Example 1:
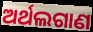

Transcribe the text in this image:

ଅର୍ଥଲଗାଣ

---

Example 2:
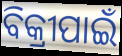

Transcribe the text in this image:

ବିକ୍ରୀପାଇଁ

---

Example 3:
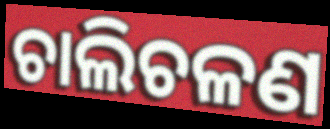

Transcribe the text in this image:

ଚାଲିଚଳଣ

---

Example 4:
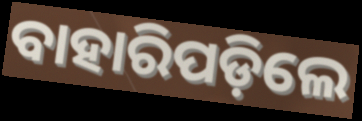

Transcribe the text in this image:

ବାହାରିପଡ଼ିଲେ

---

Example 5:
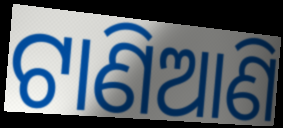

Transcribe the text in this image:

ଟାଣିଆଣି